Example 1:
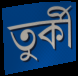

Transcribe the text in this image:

তুৰ্কী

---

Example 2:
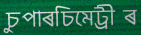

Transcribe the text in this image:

চুপাৰচিমেট্ৰীৰ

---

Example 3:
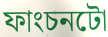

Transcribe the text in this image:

ফাংচনটো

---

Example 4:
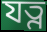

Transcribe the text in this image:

যত্ন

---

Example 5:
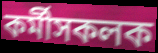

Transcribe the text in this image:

কৰ্মীসকলক